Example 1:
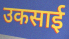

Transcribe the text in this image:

उकसाई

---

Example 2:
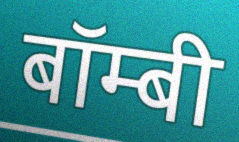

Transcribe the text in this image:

बॉम्बी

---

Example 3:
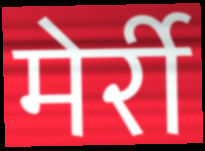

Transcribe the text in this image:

मेर्री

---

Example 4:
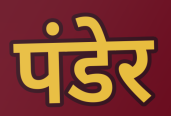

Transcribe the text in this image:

पंडेर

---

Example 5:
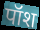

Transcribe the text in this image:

पॉश